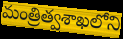
మంత్రిత్వశాఖలోని